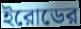
ইরোডের